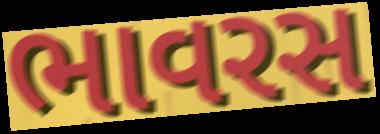
ભાવરસ